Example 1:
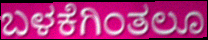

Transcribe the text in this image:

ಬಳಕೆಗಿಂತಲೂ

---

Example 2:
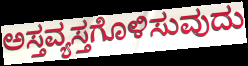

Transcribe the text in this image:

ಅಸ್ತವ್ಯಸ್ತಗೊಳಿಸುವುದು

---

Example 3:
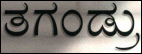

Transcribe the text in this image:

ತಗಂಡ್ರು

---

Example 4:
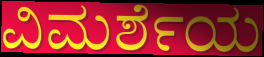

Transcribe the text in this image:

ವಿಮರ್ಶೆಯ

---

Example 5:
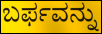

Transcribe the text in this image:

ಬರ್ಫವನ್ನು